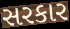
સરકાર